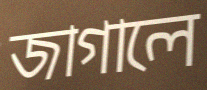
জাগালে